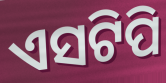
ଏସଟିପି